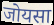
जोयसा